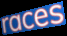
races